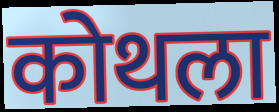
कोथला